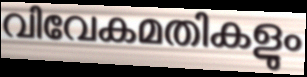
വിവേകമതികളും